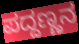
ಪದ್ದಣ್ಣನ